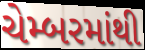
ચેમ્બરમાંથી